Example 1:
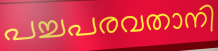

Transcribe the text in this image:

പച്ചപരവതാനി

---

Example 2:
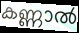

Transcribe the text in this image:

കണ്ണാൽ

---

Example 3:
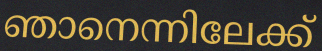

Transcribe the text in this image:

ഞാനെന്നിലേക്ക്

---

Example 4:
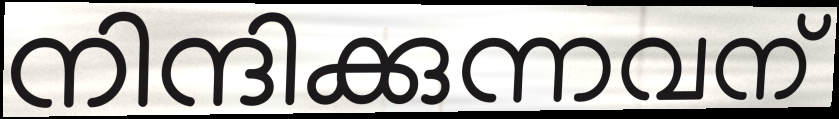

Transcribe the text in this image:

നിന്ദിക്കുന്നവന്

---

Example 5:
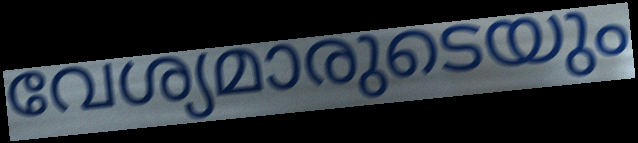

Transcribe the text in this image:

വേശ്യമാരുടെയും